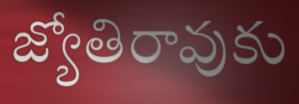
జ్యోతిరావుకు